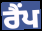
ਰੈਂਪ